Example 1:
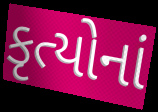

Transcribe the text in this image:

કૃત્યોનાં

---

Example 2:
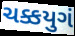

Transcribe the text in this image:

ચક્કયુગં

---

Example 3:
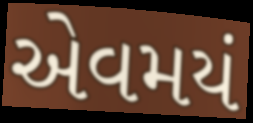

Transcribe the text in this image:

એવમયં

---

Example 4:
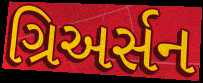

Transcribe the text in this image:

ગ્રિઅર્સન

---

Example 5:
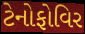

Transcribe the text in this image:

ટેનોફોવિર